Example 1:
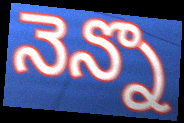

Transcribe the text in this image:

నెన్నొ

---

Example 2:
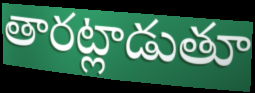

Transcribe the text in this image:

తారట్లాడుతూ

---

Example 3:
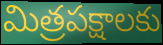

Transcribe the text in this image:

మిత్రపక్షాలకు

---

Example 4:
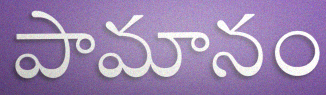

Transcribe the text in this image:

పామానం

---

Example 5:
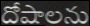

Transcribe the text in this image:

దోషాలను